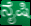
ನೈಷಿ